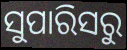
ସୁପାରିସରୁ